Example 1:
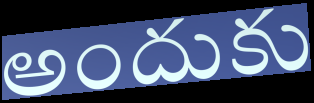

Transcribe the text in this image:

అందుకు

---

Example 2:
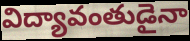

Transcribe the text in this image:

విద్యావంతుడైనా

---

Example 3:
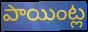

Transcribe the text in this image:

పాయింట్ల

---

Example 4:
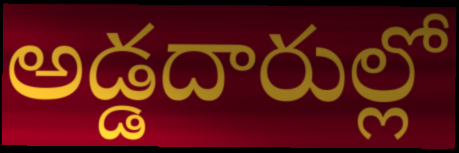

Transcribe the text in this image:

అడ్డదారుల్లో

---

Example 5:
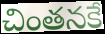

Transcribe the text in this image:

చింతనకే